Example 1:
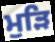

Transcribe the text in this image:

ਮੁੜਿ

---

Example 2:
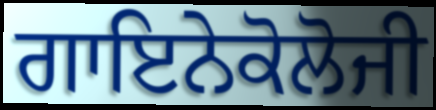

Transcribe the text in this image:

ਗਾਇਨੇਕੋਲੋਜੀ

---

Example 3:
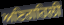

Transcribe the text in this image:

ਅਣਿਗਹਿਲੀ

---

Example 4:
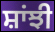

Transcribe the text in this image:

ਸ਼ਾਂਝੀ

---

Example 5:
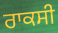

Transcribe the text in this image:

ਰਾਕਸੀ